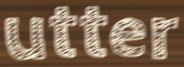
utter